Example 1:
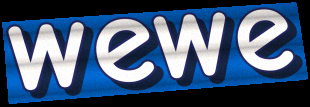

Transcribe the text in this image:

wewe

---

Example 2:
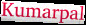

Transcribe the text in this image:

Kumarpal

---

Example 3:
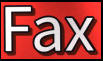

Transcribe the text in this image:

Fax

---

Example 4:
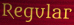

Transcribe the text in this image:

Regular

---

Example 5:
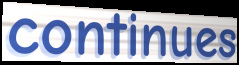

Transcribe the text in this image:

continues